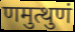
णमुत्थुणं